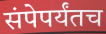
संपेपर्यंतच